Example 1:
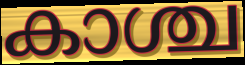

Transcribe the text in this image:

കാശ്ച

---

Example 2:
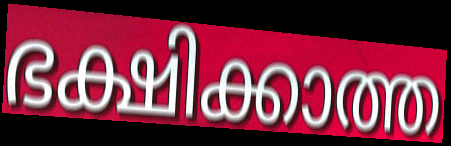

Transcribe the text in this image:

ഭക്ഷിക്കാത്ത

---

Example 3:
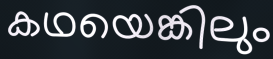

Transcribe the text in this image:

കഥയെങ്കിലും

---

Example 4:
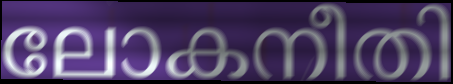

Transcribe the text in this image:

ലോകനീതി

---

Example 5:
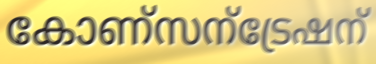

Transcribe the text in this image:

കോണ്സന്ട്രേഷന്